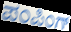
ಪಂಪಿಂಗ್